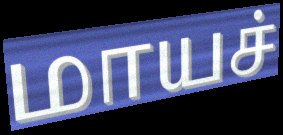
மாயச்